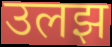
उलझ